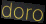
doro